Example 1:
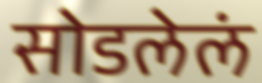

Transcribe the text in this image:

सोडलेलं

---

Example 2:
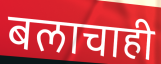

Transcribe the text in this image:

बलाचाही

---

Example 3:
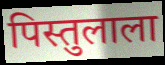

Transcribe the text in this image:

पिस्तुलाला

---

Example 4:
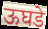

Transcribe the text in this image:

ऊघडे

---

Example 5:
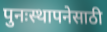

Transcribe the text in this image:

पुनःस्थापनेसाठी